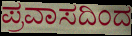
ಪ್ರವಾಸದಿಂದ